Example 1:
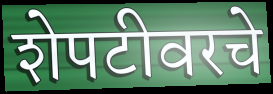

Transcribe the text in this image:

शेपटीवरचे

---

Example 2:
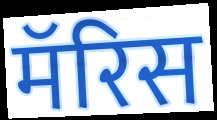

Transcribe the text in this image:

मॅरिस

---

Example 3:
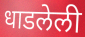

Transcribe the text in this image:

धाडलेली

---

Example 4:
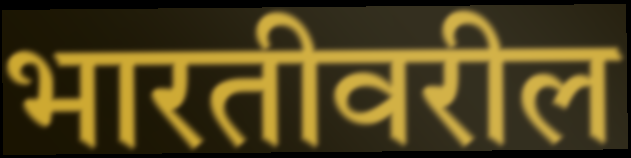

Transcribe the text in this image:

भारतीवरील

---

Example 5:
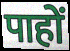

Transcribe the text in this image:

पाहों